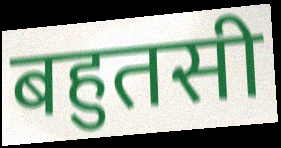
बहुतसी